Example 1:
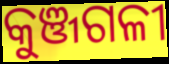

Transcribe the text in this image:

କୁଞ୍ଜଗଳୀ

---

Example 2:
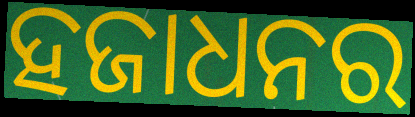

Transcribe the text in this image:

ହଜାଧନର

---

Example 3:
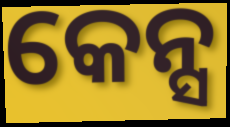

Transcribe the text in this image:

କେନ୍ସ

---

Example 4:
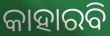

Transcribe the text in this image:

କାହାରବି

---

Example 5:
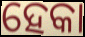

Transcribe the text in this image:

ହେକା